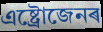
এষ্ট্ৰোজেনৰ